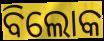
ବିଲୋକ